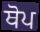
ਥੋਪ